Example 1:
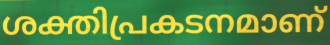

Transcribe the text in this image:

ശക്തിപ്രകടനമാണ്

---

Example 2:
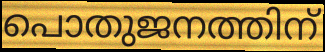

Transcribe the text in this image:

പൊതുജനത്തിന്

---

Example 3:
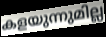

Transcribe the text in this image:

കളയുന്നുമില്ല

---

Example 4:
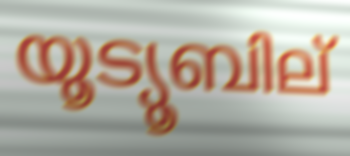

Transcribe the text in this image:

യൂട്യൂബില്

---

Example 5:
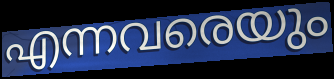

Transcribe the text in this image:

എന്നവരെയും